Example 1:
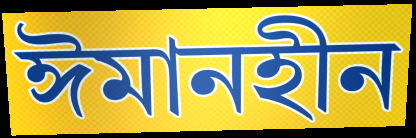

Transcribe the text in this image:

ঈমানহীন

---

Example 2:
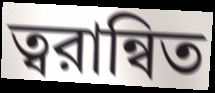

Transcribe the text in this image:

ত্বরান্বিত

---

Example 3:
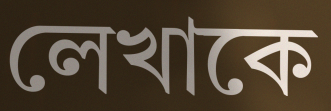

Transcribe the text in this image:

লেখাকে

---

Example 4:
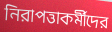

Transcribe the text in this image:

নিরাপত্তাকর্মীদের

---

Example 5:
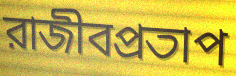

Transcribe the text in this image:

রাজীবপ্রতাপ